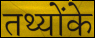
तथ्योंके